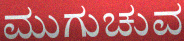
ಮುಗುಚುವ